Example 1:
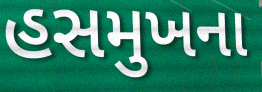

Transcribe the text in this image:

હસમુખના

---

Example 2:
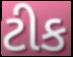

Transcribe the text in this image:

ટીક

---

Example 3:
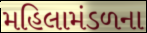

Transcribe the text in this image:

મહિલામંડળના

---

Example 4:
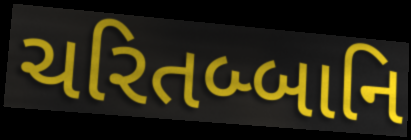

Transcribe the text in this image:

ચરિતબ્બાનિ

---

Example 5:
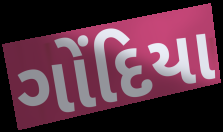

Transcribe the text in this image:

ગોંદિયા